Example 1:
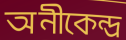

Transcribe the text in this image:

অনীকেন্দ্র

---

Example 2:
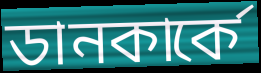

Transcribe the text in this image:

ডানকার্কে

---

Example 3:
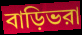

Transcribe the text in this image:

বাড়িভরা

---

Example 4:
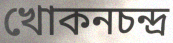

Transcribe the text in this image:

খোকনচন্দ্র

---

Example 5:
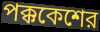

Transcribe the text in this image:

পক্ককেশের